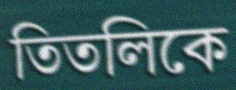
তিতলিকে